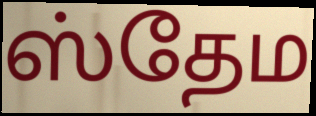
ஸ்தேம